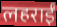
लहराईं